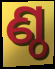
ଣ୍ଠ